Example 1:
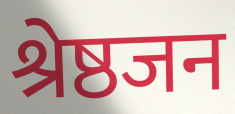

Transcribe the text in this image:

श्रेष्ठजन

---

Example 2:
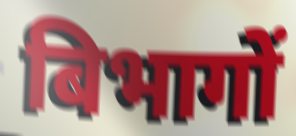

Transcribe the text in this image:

बिभागों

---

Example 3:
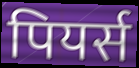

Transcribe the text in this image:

पियर्स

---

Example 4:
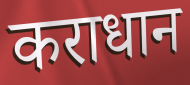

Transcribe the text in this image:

कराधान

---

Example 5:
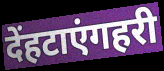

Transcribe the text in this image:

देंहटाएंगहरी